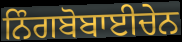
ਨਿੰਗਬੋਬਾਈਚੇਨ